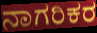
ನಾಗರಿಕರ